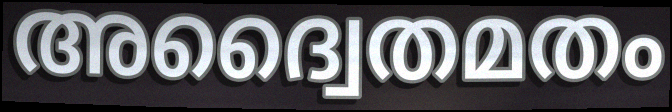
അദ്വൈതമതം